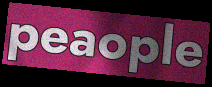
peaople